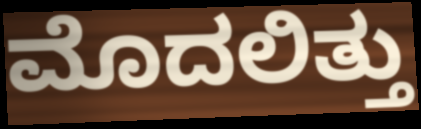
ಮೊದಲಿತ್ತು